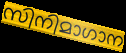
സിനിമാഗാന